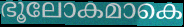
ഭൂലോകമാകെ